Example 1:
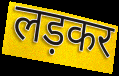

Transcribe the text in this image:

लड़कर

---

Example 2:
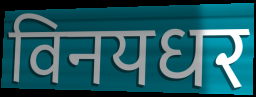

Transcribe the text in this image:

विनयधर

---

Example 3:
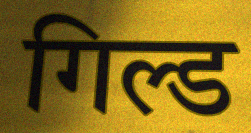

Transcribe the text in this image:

गिल्ड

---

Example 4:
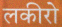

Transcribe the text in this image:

लकीरो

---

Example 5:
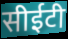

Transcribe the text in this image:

सीईटी